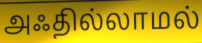
அஃதில்லாமல்